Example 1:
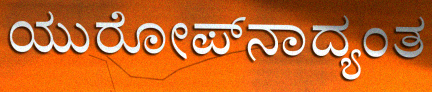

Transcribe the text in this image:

ಯುರೋಪ್‌ನಾದ್ಯಂತ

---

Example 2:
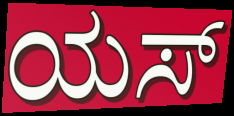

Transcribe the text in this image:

ಯಸ್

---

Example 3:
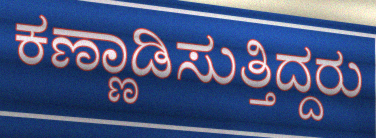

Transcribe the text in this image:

ಕಣ್ಣಾಡಿಸುತ್ತಿದ್ದರು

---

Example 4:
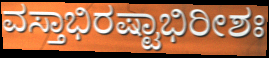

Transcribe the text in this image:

ವಸ್ತಾಭಿರಷ್ಟಾಭಿರೀಶಃ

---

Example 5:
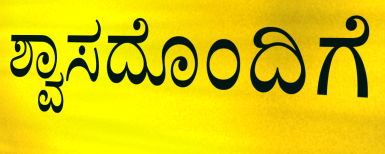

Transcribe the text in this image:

ಶ್ವಾಸದೊಂದಿಗೆ